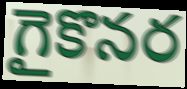
గైకొనర